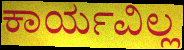
ಕಾರ್ಯವಿಲ್ಲ